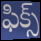
ఫిక్స్